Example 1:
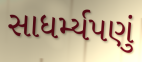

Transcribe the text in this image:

સાધર્મ્યપણું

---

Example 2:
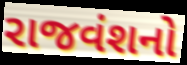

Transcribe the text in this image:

રાજવંશનો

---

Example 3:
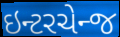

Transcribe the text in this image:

ઇન્ટરચેન્જ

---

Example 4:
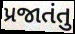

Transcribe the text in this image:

પ્રજાતંતુ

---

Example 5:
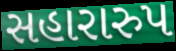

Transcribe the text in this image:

સહારારુપ